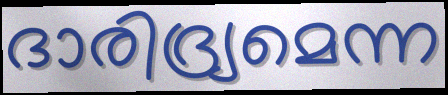
ദാരിദ്ര്യമെന്ന